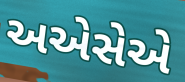
અએસેએ